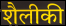
शैलीकी